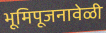
भूमिपूजनावेळी